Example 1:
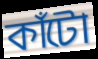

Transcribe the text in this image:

কাঁটো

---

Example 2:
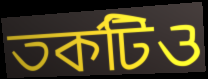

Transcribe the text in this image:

তর্কটিও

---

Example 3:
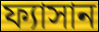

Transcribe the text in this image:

ফ্যাসান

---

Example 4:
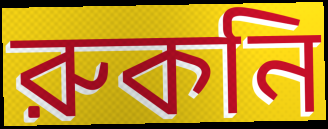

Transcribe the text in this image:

রুকনি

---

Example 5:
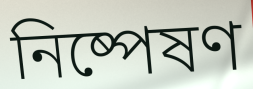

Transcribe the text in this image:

নিষ্পেষণ